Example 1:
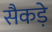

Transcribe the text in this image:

सैकड़े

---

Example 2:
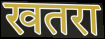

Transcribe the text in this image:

खतरा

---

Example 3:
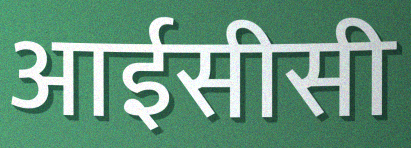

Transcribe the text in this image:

आईसीसी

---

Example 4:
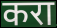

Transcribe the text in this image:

करा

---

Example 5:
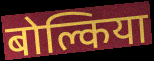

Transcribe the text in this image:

बोल्किया